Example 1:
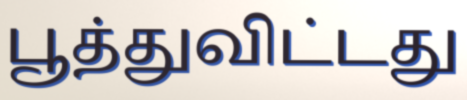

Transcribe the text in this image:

பூத்துவிட்டது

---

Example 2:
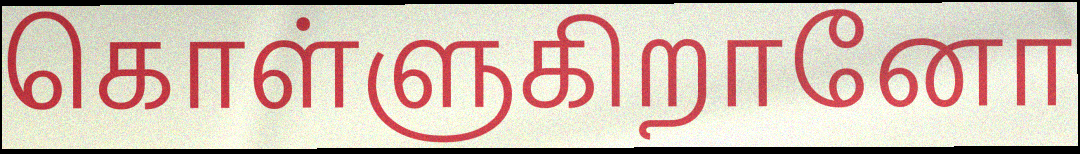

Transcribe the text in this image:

கொள்ளுகிறானோ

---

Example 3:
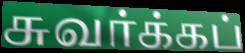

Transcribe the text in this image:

சுவர்க்கப்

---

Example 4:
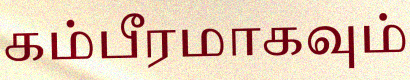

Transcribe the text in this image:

கம்பீரமாகவும்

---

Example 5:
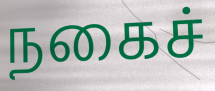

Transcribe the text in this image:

நகைச்